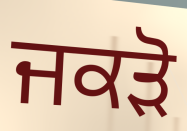
ਜਕੜੋ